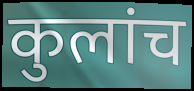
कुलांच